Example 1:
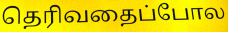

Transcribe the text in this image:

தெரிவதைப்போல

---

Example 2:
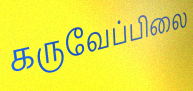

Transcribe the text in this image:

கருவேப்பிலை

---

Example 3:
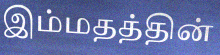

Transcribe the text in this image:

இம்மதத்தின்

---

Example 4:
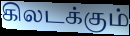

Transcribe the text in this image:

கிலடக்கும்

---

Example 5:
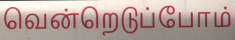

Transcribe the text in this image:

வென்றெடுப்போம்